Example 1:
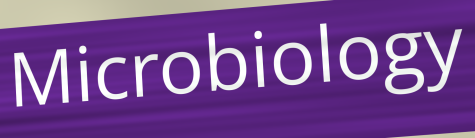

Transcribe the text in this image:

Microbiology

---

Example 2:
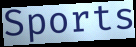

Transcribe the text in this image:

Sports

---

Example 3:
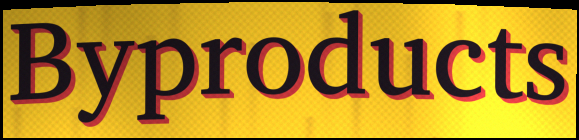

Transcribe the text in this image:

Byproducts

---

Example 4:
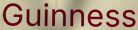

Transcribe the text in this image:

Guinness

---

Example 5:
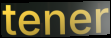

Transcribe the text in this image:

tener